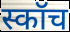
स्कॉच